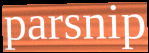
parsnip